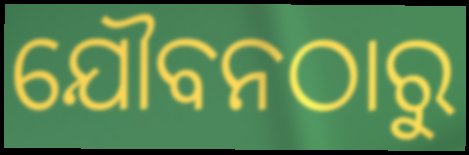
ଯୌବନଠାରୁ